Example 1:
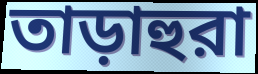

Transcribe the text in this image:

তাড়াহুরা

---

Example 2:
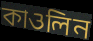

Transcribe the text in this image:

কাওলিন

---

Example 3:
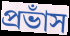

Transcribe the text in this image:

প্রভাঁস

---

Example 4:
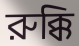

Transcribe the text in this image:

রুক্কি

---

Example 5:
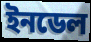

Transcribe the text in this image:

ইনডেল